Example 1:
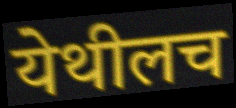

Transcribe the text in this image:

येथीलच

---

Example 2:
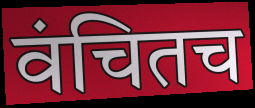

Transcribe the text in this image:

वंचितच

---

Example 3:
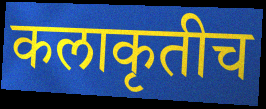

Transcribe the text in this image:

कलाकृतीच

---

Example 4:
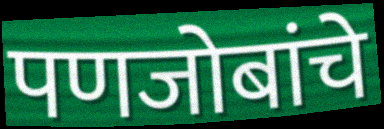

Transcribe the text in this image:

पणजोबांचे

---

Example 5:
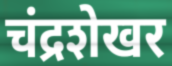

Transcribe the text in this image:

चंद्रशेखर